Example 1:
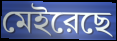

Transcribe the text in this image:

মেইরেছে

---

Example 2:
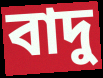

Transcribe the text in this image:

বাদু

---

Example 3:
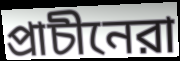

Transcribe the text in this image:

প্রাচীনেরা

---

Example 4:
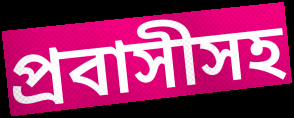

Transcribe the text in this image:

প্রবাসীসহ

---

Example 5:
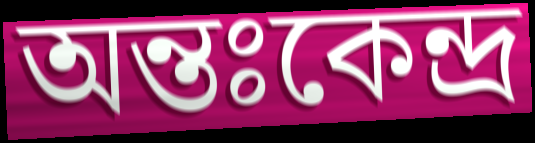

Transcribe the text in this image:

অন্তঃকেন্দ্র